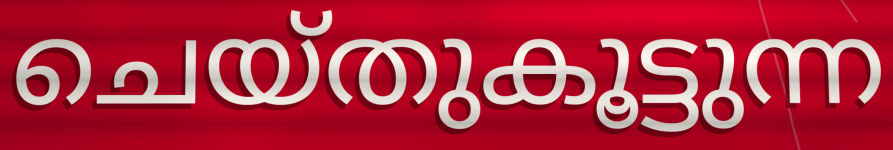
ചെയ്തുകൂട്ടുന്ന